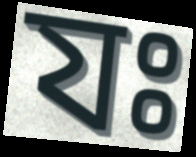
যঃ